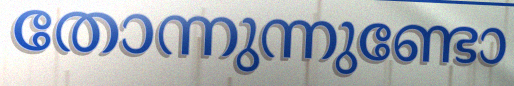
തോന്നുന്നുണ്ടോ